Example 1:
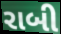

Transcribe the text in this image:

રાબી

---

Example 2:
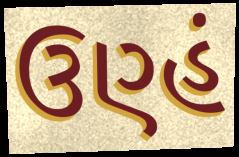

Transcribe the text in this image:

ઉણ્હં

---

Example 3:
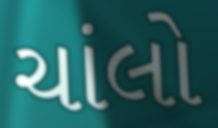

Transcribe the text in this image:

ચાંલો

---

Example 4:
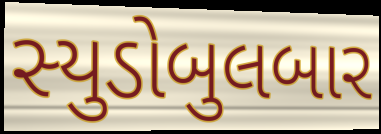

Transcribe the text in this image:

સ્યુડોબુલબાર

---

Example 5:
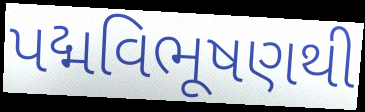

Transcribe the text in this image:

પદ્મવિભૂષણથી